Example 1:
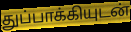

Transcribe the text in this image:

துப்பாக்கியுடன்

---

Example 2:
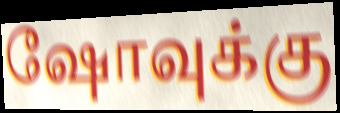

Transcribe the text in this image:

ஷோவுக்கு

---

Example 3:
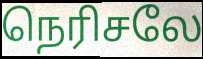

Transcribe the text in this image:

நெரிசலே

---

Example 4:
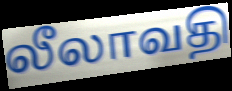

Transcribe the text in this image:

லீலாவதி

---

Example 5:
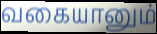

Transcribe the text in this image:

வகையானும்